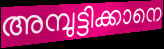
അമ്പുട്ടിക്കാനെ